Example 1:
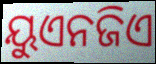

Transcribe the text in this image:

ୟୁଏନଜିଏ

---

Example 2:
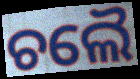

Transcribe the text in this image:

ଚଲୈ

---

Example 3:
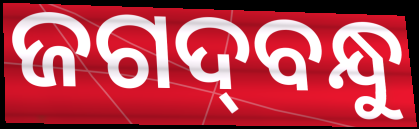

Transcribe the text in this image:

ଜଗଦ୍‌ବନ୍ଧୁ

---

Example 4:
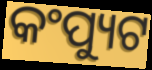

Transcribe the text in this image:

କଂପ୍ୟୁଟ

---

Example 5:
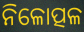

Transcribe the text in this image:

ନିଳୋତ୍ପଳ